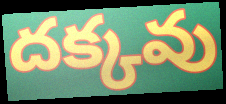
దక్కవు